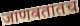
जाणवतातच